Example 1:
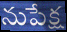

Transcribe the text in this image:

నుపేక్ష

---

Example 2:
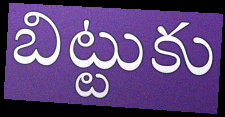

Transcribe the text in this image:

బిట్టుకు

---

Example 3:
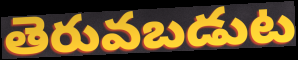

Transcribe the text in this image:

తెరువబడుట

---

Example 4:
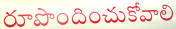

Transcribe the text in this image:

రూపొందించుకోవాలి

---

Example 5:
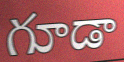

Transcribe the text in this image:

గూడా